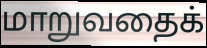
மாறுவதைக்